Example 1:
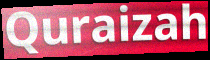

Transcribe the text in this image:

Quraizah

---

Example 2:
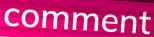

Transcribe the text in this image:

comment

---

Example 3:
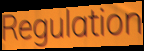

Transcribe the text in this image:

Regulation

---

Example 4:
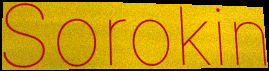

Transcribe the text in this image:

Sorokin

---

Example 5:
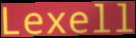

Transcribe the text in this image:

Lexell